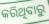
କରିଥିବାରୁ